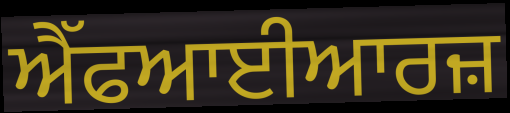
ਐੱਫਆਈਆਰਜ਼